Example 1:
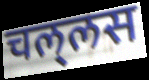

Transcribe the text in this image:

चल्लस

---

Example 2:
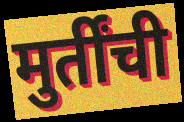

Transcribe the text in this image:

मुर्तींची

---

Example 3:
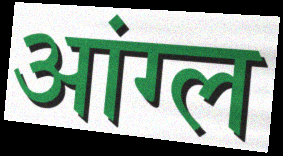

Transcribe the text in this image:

आंग्ल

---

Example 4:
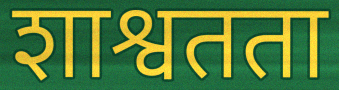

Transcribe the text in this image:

शाश्वतता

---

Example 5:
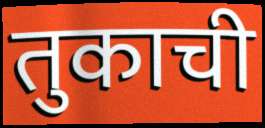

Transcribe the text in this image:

तुकाची